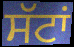
ਸੱਟਾਂ